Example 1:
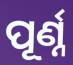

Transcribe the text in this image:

ପୂର୍ଣ୍ନ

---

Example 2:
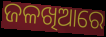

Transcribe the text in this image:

ଜଳଖିଆରେ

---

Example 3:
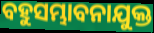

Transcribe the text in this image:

ବହୁସମ୍ଭାବନାଯୁକ୍ତ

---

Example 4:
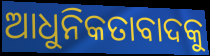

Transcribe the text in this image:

ଆଧୁନିକତାବାଦକୁ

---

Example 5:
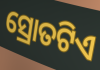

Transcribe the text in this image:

ସ୍ରୋତଟିଏ